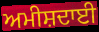
ਅਮੀਸ਼ਦਾਈ